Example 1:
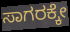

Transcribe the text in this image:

ಸಾಗರಕ್ಕೇ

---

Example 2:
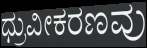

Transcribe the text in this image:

ಧ್ರುವೀಕರಣವು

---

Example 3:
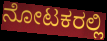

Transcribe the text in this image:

ನೋಟಕರಲ್ಲಿ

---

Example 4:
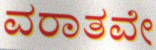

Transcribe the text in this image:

ವರಾತವೇ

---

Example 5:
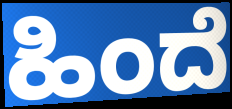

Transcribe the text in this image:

ಹಿಂದೆ